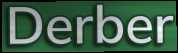
Derber